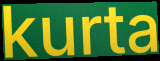
kurta